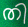
തി